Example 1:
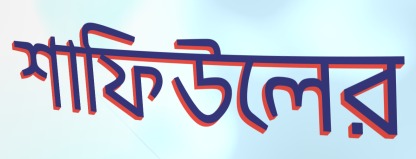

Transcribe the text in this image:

শাফিউলের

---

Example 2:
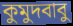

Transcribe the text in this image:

কুমুদবাবু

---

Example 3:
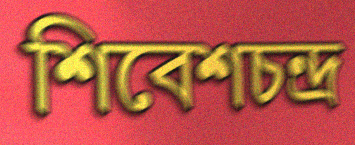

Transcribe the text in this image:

শিবেশচন্দ্র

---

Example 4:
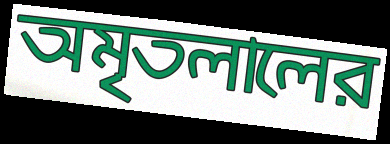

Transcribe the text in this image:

অমৃতলালের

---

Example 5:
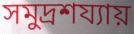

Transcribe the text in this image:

সমুদ্রশয্যায়